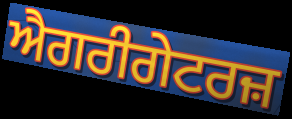
ਐਗਰੀਗੇਟਰਜ਼